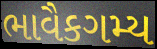
ભાવૈકગમ્ય